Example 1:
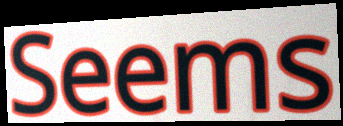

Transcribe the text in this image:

Seems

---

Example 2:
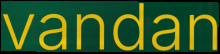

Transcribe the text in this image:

vandan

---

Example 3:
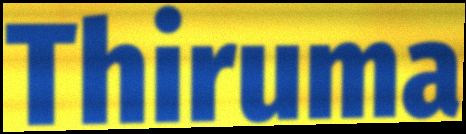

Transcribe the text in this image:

Thiruma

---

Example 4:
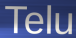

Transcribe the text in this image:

Telu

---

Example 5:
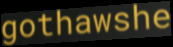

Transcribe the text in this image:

gothawshe